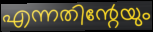
എന്നതിന്റേയും